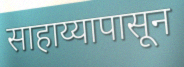
साहाय्यापासून